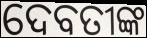
ଦେବତୀଙ୍କ